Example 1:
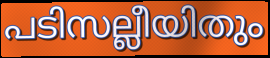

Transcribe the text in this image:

പടിസല്ലീയിതും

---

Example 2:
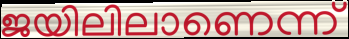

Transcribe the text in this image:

ജയിലിലാണെന്ന്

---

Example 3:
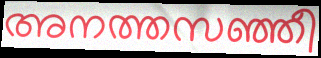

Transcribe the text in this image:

അനത്തസഞ്ഞീ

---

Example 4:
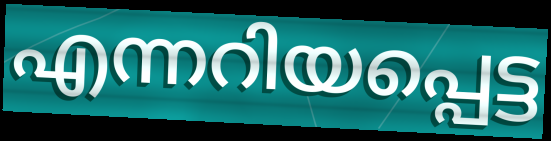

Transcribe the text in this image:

എന്നറിയപ്പെട്ട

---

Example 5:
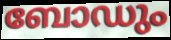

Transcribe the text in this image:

ബോഡും